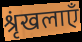
श्रृंखलाएँ